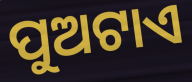
ପୁଅଟାଏ